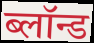
ब्लॉन्ड